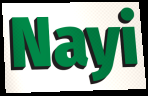
Nayi